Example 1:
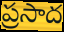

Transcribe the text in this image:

ప్రసాద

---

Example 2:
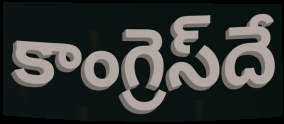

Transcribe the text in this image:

కాంగ్రెస్‌దే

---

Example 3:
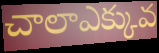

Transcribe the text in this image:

చాలాఎక్కువ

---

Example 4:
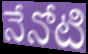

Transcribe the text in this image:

నేనోటి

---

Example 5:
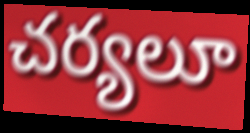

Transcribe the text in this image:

చర్యలూ